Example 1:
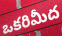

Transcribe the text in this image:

ఒకరిమీద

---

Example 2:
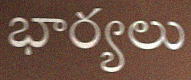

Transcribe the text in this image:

భార్యలు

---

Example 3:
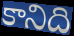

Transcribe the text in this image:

కానిది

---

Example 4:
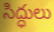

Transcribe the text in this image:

సిద్ధులు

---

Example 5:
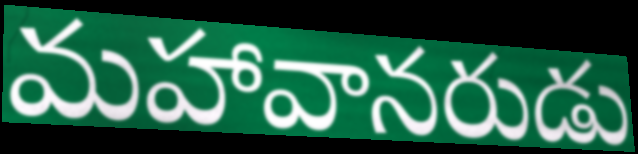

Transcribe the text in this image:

మహావానరుడు